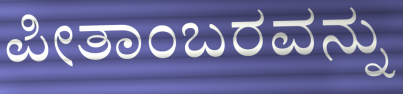
ಪೀತಾಂಬರವನ್ನು